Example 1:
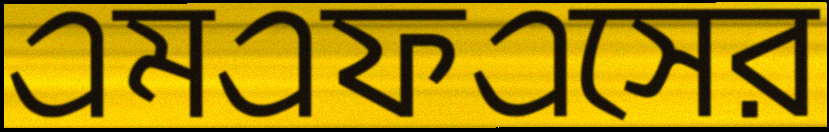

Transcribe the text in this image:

এমএফএসের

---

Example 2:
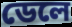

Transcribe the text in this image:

ডেলে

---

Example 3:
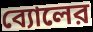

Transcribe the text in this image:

ব্যোলের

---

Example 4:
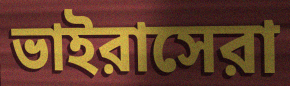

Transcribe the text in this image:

ভাইরাসেরা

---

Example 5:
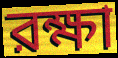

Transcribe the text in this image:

রক্ষা